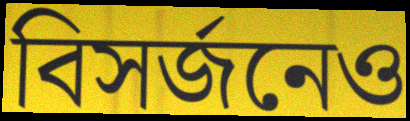
বিসর্জনেও